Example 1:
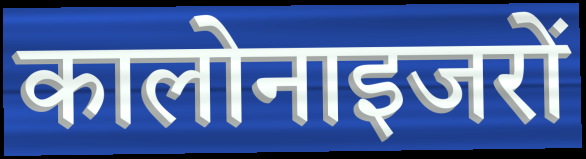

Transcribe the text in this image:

कालोनाइजरों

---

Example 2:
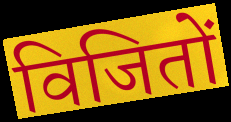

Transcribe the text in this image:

विजितों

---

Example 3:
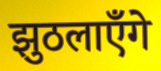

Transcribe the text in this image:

झुठलाएँगे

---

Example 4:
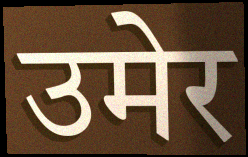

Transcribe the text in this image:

उमेर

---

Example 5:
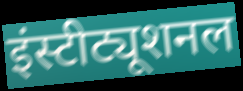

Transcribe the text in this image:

इंस्टीट्यूशनल